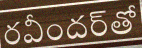
రవీందర్‌తో